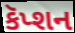
કૅપ્શન